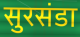
सुरसंडा